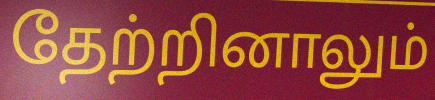
தேற்றினாலும்